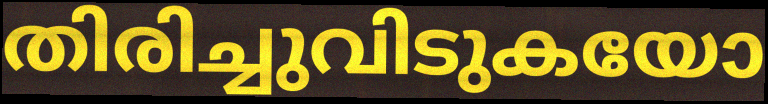
തിരിച്ചുവിടുകയോ